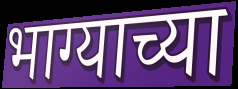
भाग्याच्या